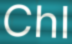
Chl